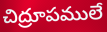
చిద్రూపములే